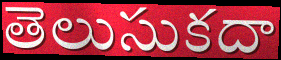
తెలుసుకదా